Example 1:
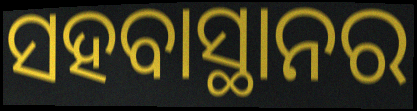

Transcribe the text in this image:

ସହବାସ୍ଥାନର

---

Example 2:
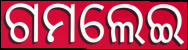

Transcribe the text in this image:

ଗମଲେଇ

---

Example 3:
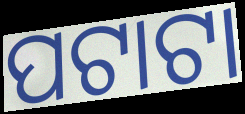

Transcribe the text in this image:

ପଟାଟା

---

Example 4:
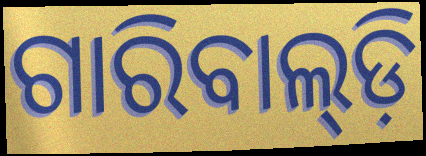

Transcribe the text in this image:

ଗାରିବାଲ୍‌ଡ଼ି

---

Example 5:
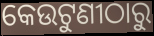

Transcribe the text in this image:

କେଉଟୁଣୀଠାରୁ